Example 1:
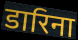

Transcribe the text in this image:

डारिना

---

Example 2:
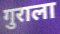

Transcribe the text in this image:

गुराला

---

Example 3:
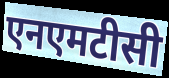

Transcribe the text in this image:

एनएमटीसी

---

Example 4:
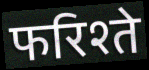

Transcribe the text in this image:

फरिश्ते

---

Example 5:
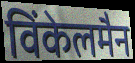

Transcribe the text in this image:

विंकेलमैन